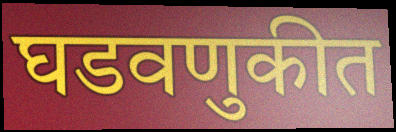
घडवणुकीत